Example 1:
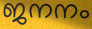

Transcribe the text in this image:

ജനനം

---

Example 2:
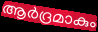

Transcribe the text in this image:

ആർദ്രമാകും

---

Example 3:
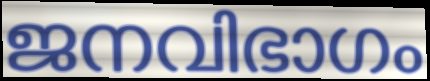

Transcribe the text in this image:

ജനവിഭാഗം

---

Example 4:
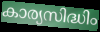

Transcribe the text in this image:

കാര്യസിദ്ധിം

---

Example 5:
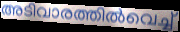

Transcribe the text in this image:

അടിവാരത്തിൽവെച്ച്